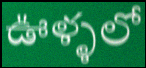
ఊళ్ళలో